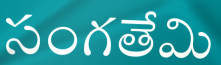
సంగతేమి